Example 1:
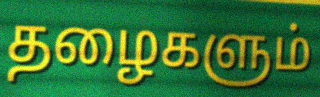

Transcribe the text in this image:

தழைகளும்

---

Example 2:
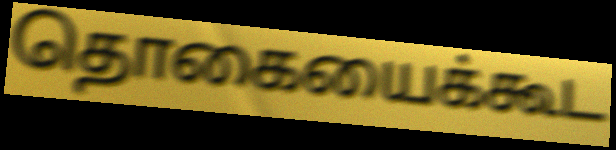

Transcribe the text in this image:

தொகையைக்கூட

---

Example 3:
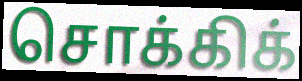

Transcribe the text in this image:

சொக்கிக்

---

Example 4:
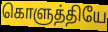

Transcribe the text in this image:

கொளுத்தியே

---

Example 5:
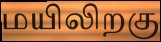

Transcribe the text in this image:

மயிலிறகு